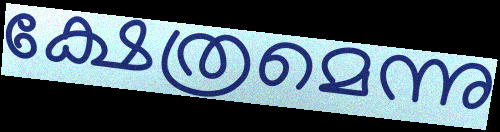
ക്ഷേത്രമെന്നു